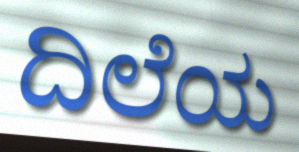
ದಿಲೆಯ